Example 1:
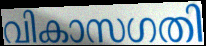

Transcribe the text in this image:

വികാസഗതി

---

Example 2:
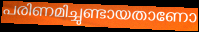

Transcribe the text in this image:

പരിണമിച്ചുണ്ടായതാണോ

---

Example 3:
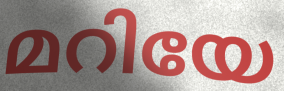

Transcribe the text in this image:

മറിയേ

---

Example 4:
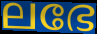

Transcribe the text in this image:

ലഭേ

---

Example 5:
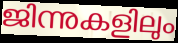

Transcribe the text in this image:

ജിന്നുകളിലും